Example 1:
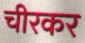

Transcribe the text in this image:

चीरकर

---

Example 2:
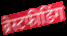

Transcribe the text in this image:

ब्रेस्टफीडिंग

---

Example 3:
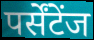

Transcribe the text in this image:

पर्सेंटेंज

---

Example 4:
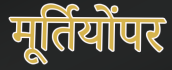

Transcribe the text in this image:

मूर्तियोंपर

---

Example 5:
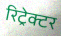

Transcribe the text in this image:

रिट्रेक्टर